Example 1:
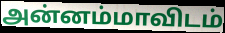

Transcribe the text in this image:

அன்னம்மாவிடம்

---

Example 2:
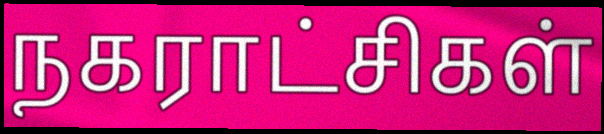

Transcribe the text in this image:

நகராட்சிகள்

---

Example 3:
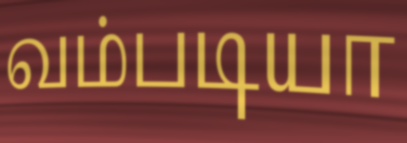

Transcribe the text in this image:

வம்படியா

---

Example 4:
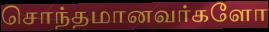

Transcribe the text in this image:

சொந்தமானவர்களோ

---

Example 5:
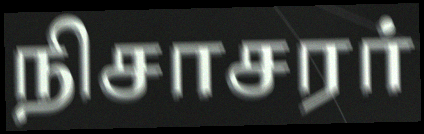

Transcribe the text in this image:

நிசாசரர்